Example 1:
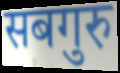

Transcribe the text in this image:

सबगुरु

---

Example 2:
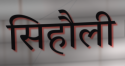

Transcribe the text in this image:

सिहौली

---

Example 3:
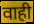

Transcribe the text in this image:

वाही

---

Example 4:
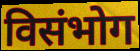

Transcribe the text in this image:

विसंभोग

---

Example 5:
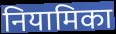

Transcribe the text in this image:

नियामिका